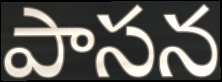
పాసన